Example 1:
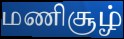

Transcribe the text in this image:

மணிசூழ்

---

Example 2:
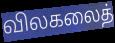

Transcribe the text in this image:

விலகலைத்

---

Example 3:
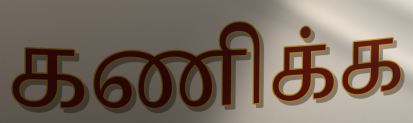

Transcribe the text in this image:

கணிக்க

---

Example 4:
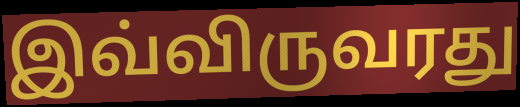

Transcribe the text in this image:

இவ்விருவரது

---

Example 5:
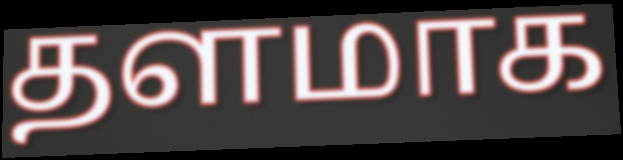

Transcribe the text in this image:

தளமாக